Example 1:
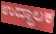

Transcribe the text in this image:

ಉದ್ಧಾಲಕ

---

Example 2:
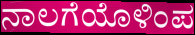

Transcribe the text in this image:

ನಾಲಗೆಯೊಳಿಂಪ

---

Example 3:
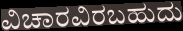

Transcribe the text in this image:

ವಿಚಾರವಿರಬಹುದು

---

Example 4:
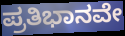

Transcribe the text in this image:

ಪ್ರತಿಭಾನವೇ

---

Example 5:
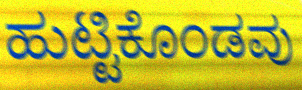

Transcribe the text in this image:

ಹುಟ್ಟಿಕೊಂಡವು